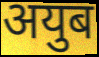
अयुब